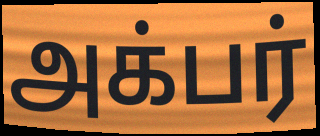
அக்பர்